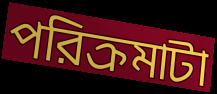
পরিক্রমাটা